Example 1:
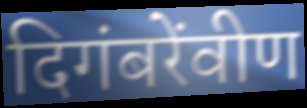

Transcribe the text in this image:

दिगंबरेंवीण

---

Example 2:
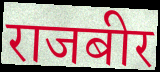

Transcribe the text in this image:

राजबीर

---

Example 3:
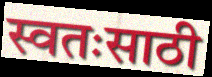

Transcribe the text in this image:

स्वतःसाठी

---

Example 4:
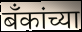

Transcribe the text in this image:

बॅंकांच्या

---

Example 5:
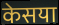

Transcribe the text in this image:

केसया